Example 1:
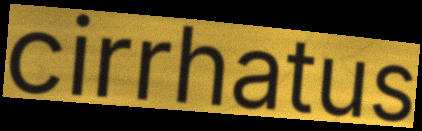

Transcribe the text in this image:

cirrhatus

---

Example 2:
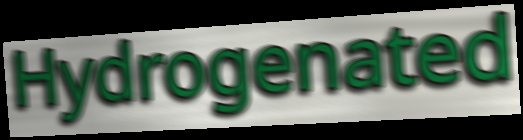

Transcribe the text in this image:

Hydrogenated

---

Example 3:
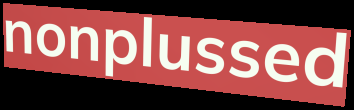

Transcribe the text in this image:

nonplussed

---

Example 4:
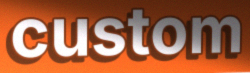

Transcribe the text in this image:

custom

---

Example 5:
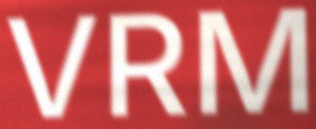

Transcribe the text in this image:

VRM